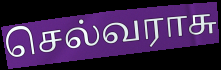
செல்வராசு